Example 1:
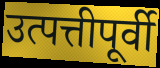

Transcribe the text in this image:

उत्पत्तीपूर्वी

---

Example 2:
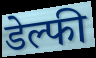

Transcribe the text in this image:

डेल्फी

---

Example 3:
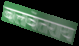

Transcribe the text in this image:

बलवंतराय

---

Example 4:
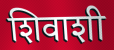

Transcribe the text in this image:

शिवाशी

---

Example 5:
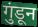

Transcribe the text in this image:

गुंडून